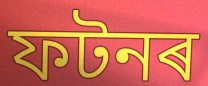
ফটনৰ